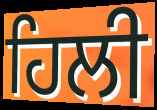
ਹਿਲੀ